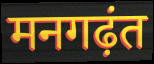
मनगढ़ंत